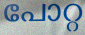
പോറ്റ